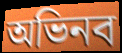
অভিনব